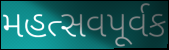
મહત્સવપૂર્વક